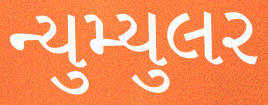
ન્યુમ્યુલર